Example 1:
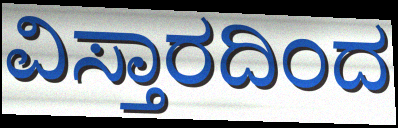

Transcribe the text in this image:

ವಿಸ್ತಾರದಿಂದ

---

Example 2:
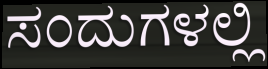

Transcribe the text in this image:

ಸಂದುಗಳಲ್ಲಿ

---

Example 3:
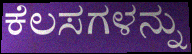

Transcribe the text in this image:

ಕೆಲಸಗಳನ್ನು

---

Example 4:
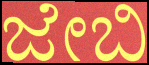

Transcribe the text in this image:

ಜೇಬಿ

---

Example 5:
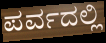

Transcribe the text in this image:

ಪರ್ವದಲ್ಲಿ